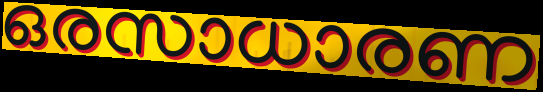
ഒരസാധാരണ